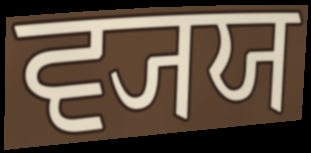
ਵ੍ਯਯ